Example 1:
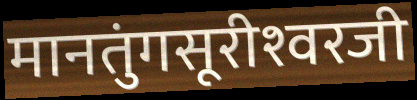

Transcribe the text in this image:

मानतुंगसूरीश्वरजी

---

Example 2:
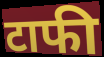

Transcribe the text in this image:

टाफी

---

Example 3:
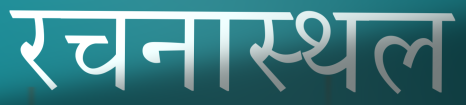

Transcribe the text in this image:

रचनास्थल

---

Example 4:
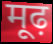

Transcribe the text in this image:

मूढ़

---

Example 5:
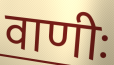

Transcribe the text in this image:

वाणीः